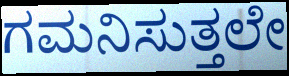
ಗಮನಿಸುತ್ತಲೇ